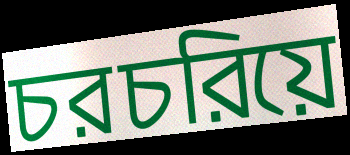
চরচরিয়ে